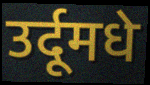
उर्दूमधे